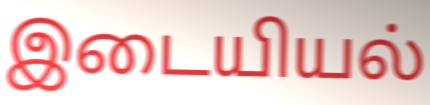
இடையியல்